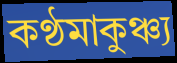
কণ্ঠমাকুঞ্চ্য